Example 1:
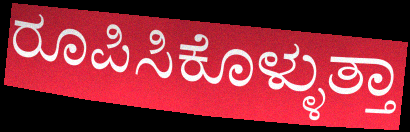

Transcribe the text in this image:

ರೂಪಿಸಿಕೊಳ್ಳುತ್ತಾ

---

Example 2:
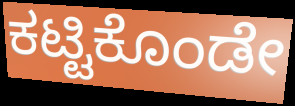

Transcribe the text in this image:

ಕಟ್ಟಿಕೊಂಡೇ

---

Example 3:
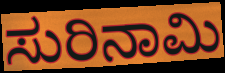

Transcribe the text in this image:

ಸುರಿನಾಮಿ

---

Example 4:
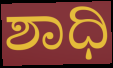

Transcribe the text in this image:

ಶಾಧಿ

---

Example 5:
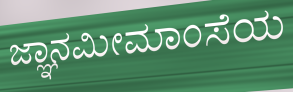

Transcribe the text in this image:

ಜ್ಞಾನಮೀಮಾಂಸೆಯ